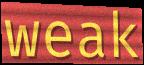
weak